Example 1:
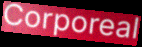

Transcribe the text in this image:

Corporeal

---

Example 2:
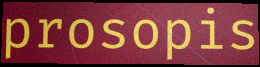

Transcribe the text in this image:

prosopis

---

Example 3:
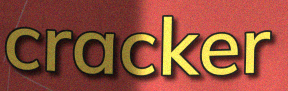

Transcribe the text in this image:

cracker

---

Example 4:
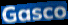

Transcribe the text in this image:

Gasco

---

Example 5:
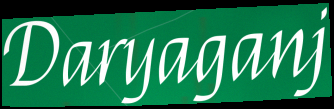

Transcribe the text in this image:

Daryaganj